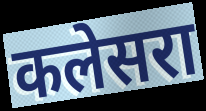
कलेसरा